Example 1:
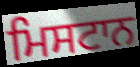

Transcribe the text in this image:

ਮਿਸਟਾਨ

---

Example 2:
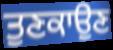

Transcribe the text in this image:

ਤੁਣਕਾਉਣ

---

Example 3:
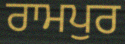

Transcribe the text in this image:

ਰਾਮਪੁਰ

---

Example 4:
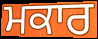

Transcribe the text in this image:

ਮਕਾਰ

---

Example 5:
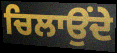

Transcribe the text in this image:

ਚਿਲਾਉਂਦੇ